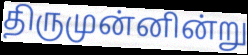
திருமுன்னின்று